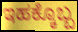
ಇಹಕ್ಕೊಬ್ಬ